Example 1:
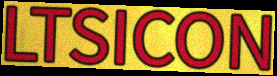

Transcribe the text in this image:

LTSICON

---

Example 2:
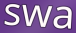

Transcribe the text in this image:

swa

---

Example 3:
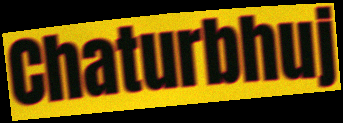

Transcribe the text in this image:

Chaturbhuj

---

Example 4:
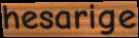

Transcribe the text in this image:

hesarige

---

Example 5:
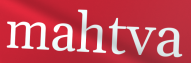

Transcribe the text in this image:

mahtva